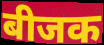
बीजक